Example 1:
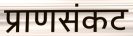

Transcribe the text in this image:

प्राणसंकट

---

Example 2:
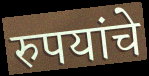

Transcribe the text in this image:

रुपयांचे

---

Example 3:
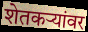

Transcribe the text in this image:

शेतकर्‍यांवर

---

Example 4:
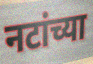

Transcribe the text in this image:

नटांच्या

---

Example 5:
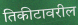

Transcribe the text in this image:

तिकीटावरील